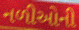
નળીઓની